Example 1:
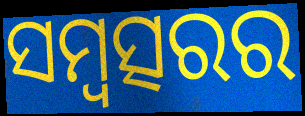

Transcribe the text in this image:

ସମ୍ବତ୍ସରର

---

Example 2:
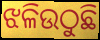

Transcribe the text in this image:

ଝଳିଉଠୁଛି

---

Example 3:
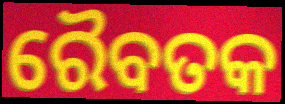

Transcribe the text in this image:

ରୈବତକ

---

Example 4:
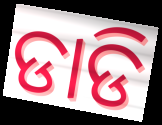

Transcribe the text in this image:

ଡାଡି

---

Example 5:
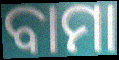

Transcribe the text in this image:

ବାମା